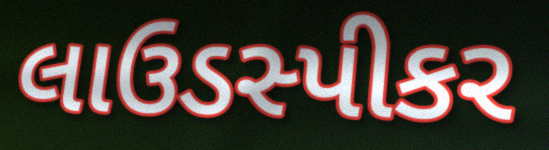
લાઉડસ્પીકર